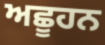
ਅਛੂਹਨ